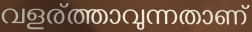
വളര്ത്താവുന്നതാണ്